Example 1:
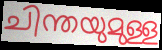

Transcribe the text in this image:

ചിന്തയുമുള്ള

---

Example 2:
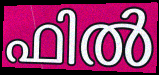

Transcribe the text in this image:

ഫിൽ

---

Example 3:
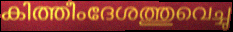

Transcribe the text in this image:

കിത്തീംദേശത്തുവെച്ചു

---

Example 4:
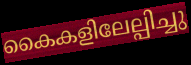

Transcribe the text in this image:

കൈകളിലേല്പിച്ചു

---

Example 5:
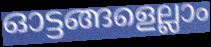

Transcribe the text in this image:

ഓട്ടങ്ങളെല്ലാം